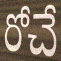
రోచే